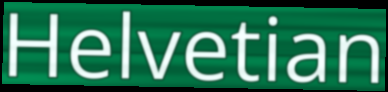
Helvetian